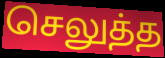
செலுத்த